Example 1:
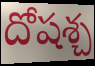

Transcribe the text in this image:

దోషశ్చ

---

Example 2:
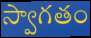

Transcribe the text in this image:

స్వాగతం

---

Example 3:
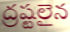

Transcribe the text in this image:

ద్రష్టలైన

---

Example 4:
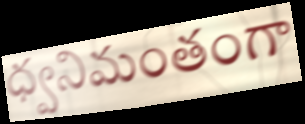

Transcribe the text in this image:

ధ్వనిమంతంగా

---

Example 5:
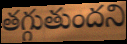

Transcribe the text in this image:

తగ్గుతుందని